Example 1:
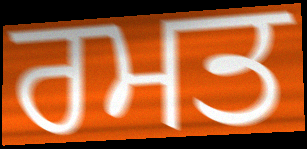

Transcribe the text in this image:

ਰਮਤ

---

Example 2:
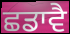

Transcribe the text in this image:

ਛਡਾਵੈ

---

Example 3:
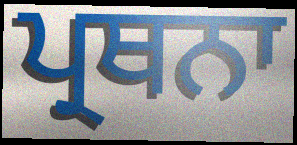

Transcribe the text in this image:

ਪ੍ਰਥਨਾ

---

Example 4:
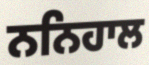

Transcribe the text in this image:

ਨਨਿਹਾਲ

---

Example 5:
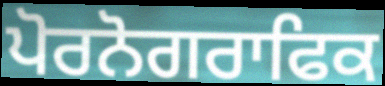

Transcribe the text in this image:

ਪੋਰਨੋਗਰਾਫਿਕ